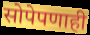
सोपेपणाही